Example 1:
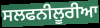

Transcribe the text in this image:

ਸਲਫਨੀਲੂਰੀਆ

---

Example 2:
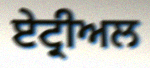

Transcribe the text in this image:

ਏਟ੍ਰੀਅਲ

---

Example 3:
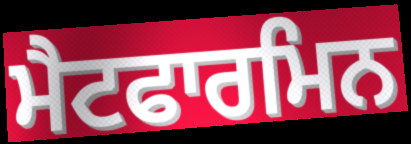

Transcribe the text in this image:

ਮੈਟਫਾਰਮਿਨ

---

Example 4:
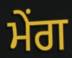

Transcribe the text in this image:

ਮੇਂਗ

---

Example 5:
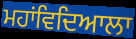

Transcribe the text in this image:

ਮਹਾਂਵਿਦਿਆਲਾ